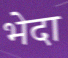
भेदा